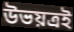
উভয়ত্রই